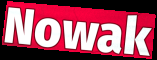
Nowak